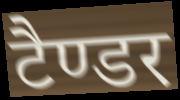
टैण्डर